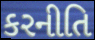
કરનીતિ